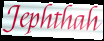
Jephthah